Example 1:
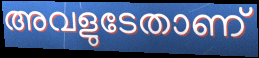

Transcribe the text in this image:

അവളുടേതാണ്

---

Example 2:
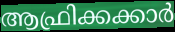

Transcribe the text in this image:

ആഫ്രിക്കക്കാർ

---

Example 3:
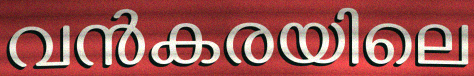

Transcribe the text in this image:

വൻകരയിലെ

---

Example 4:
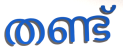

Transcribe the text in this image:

തണ്ട്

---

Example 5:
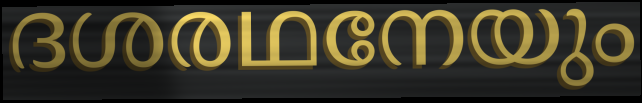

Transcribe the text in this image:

ദശരഥനേയും